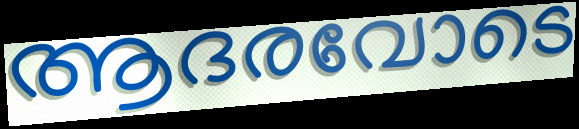
ആദരവോടെ